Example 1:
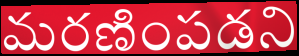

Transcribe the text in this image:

మరణింపడని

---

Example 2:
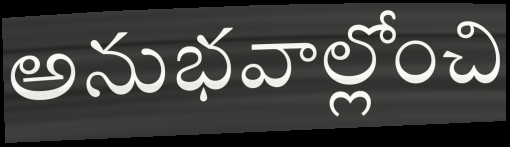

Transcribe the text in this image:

అనుభవాల్లోంచి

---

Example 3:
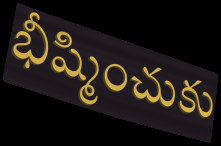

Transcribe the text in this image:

భీష్మించుకు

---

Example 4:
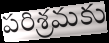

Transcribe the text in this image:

పరిశ్రమకు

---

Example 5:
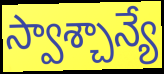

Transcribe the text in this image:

స్వాశ్చాన్యే